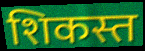
शिकस्त